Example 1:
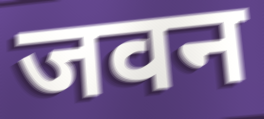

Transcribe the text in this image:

जवन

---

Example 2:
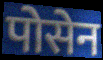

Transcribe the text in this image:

पोसेन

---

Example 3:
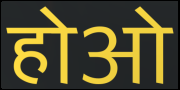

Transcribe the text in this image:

होओ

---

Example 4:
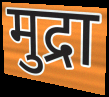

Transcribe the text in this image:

मुद्रा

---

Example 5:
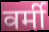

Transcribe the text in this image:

वर्मी